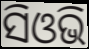
ସିଓଭି